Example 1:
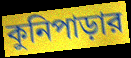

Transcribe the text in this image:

কুনিপাড়ার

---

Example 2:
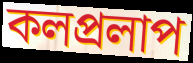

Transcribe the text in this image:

কলপ্রলাপ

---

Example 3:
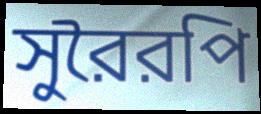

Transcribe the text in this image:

সুরৈরপি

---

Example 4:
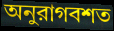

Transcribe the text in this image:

অনুরাগবশত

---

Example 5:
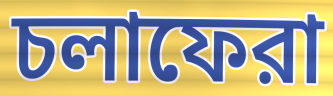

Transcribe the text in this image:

চলাফেরা